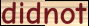
didnot